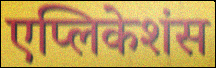
एप्लिकेशंस